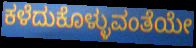
ಕಳೆದುಕೊಳ್ಳುವಂತೆಯೇ